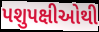
પશુપક્ષીઓથી